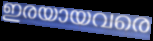
ഇരയായവരെ